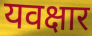
यवक्षार